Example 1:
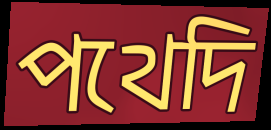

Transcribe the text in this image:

পথেদি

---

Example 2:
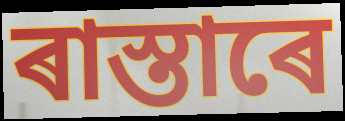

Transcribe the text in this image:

ৰাস্তাৰে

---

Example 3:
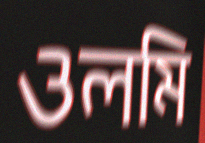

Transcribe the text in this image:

ওলমি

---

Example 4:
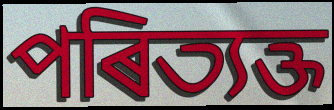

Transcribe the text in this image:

পৰিত্যক্ত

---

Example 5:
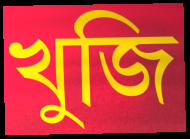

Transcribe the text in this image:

খুজি